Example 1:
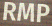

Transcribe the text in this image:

RMP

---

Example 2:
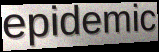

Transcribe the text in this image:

epidemic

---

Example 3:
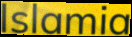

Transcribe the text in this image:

Islamia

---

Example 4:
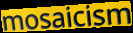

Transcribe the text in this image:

mosaicism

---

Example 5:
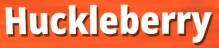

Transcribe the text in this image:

Huckleberry